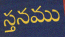
స్తనము